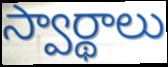
స్వార్థాలు